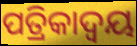
ପତ୍ରିକାଦ୍ୱୟ